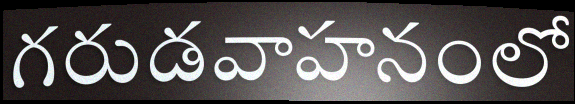
గరుడవాహనంలో